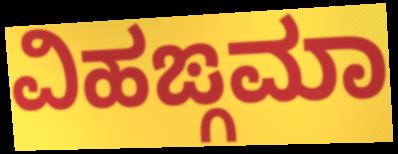
ವಿಹಙ್ಗಮಾ